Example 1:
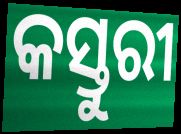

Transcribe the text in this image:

କସ୍ତୁରୀ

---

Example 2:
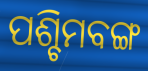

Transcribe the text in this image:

ପଶ୍ଚିମବଙ୍ଗ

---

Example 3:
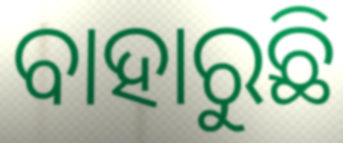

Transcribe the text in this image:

ବାହାରୁଛି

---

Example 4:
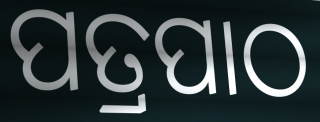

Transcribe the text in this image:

ପତ୍ରପାଠ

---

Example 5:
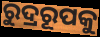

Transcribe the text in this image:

ରୁଦ୍ରରୂପକୁ